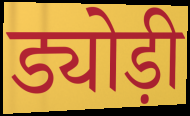
ड्योड़ी